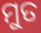
ମୁତ